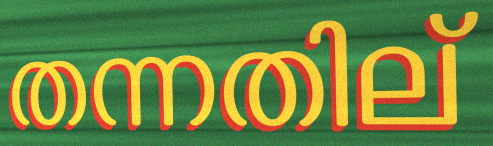
തന്നതില്